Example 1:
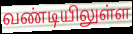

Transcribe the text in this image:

வண்டியிலுள்ள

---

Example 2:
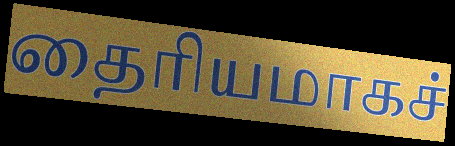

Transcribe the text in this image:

தைரியமாகச்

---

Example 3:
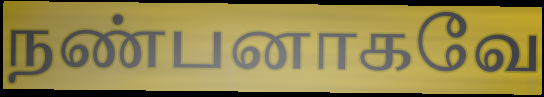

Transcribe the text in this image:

நண்பனாகவே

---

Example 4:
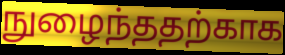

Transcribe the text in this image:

நுழைந்ததற்காக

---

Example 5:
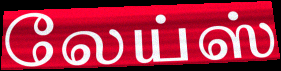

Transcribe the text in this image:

லேய்ஸ்